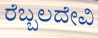
ರೆಬ್ಬಲದೇವಿ